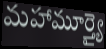
మహామూర్త్యై